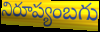
నిరూప్యంబగు